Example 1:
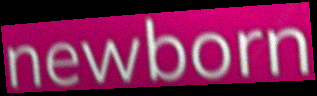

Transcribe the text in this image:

newborn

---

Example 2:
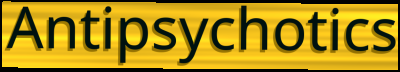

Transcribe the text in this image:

Antipsychotics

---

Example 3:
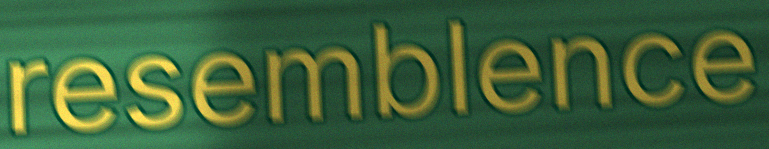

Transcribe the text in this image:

resemblence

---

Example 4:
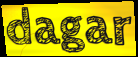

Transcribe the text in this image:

dagar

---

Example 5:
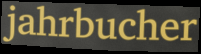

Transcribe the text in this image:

jahrbucher